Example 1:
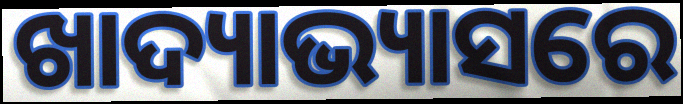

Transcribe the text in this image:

ଖାଦ୍ୟାଭ୍ୟାସରେ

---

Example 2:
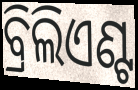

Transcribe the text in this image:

ବ୍ରିଲିଏଣ୍ଟ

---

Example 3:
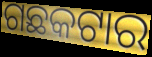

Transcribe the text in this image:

ଗଛକଟାର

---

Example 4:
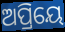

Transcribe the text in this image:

ଅପ୍ରିୟେ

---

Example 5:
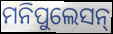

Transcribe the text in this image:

ମନିପୁଲେସନ୍